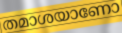
തമാശയാണോ